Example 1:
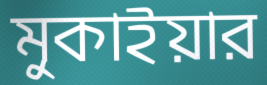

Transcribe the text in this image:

মুকাইয়ার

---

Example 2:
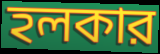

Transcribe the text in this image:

হলকার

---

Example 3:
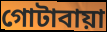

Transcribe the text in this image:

গোটাবায়া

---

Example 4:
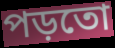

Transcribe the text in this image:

পড়তো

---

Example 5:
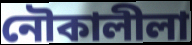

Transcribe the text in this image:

নৌকালীলা